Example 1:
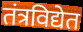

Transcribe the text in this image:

तंत्रविद्येत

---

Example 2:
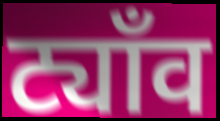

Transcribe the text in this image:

ट्याँव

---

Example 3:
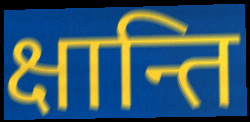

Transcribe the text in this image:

क्षान्ति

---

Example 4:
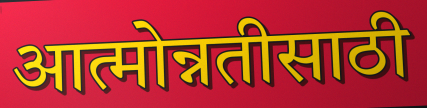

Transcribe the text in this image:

आत्मोन्नतीसाठी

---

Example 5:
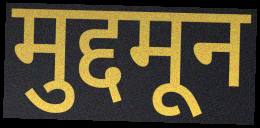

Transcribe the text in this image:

मुद्दमून